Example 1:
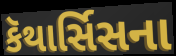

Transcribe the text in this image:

કૅથાર્સિસના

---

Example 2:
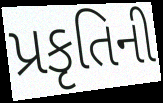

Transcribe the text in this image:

પ્રકૃતિની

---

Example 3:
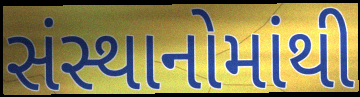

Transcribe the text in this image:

સંસ્થાનોમાંથી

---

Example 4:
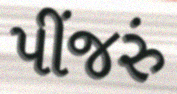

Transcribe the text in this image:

પીંજરું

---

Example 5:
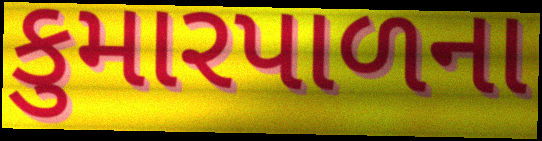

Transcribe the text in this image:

કુમારપાળના